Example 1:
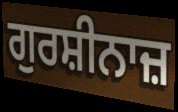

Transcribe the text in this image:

ਗੁਰਸ਼ੀਨਾਜ਼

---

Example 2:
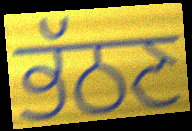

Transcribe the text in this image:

ਭੱਠਣ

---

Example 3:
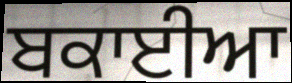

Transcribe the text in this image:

ਬਕਾਈਆ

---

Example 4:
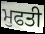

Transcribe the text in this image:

ਮੁਫਤੀ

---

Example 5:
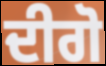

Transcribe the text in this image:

ਦੀਗੋ